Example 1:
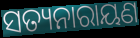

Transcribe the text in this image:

ସତ୍ୟନାରାୟଣ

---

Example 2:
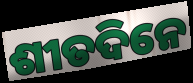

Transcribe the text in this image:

ଶୀତଦିନେ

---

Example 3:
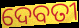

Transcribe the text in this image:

ଦେବତୀ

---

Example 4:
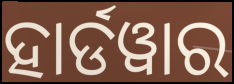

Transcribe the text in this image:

ହାର୍ଡୱାର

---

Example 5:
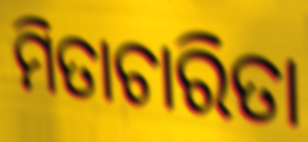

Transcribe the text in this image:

ମିତାଚାରିତା